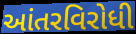
આંતરવિરોધી